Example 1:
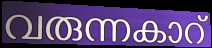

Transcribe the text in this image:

വരുന്നകാറ്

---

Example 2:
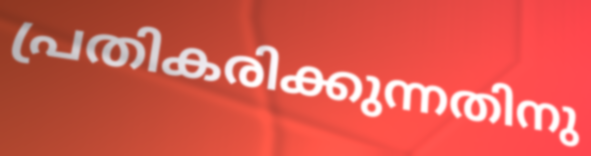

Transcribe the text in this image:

പ്രതികരിക്കുന്നതിനു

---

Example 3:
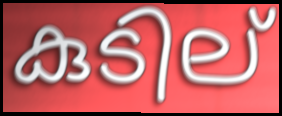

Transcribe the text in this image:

കുടില്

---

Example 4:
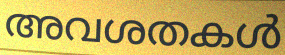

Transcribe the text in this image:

അവശതകൾ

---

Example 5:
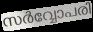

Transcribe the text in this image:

സർവ്വോപരി